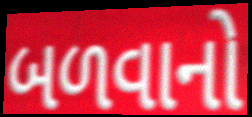
બળવાનો